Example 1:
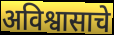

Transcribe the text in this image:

अविश्वासाचे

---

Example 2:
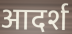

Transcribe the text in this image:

आदर्श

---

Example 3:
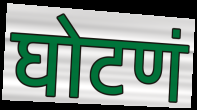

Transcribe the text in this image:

घोटणं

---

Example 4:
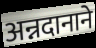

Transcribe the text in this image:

अन्नदानाने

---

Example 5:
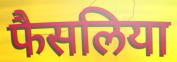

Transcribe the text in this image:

फैसलिया